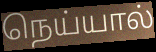
நெய்யால்